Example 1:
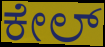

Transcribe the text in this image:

ಕೇಲ್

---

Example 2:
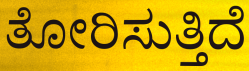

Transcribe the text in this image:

ತೋರಿಸುತ್ತಿದೆ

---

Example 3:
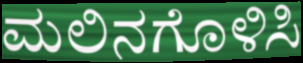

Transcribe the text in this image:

ಮಲಿನಗೊಳಿಸಿ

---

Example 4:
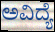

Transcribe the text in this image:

ಅವಿದ್ಯೆ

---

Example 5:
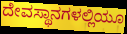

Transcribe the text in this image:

ದೇವಸ್ಥಾನಗಳಲ್ಲಿಯೂ